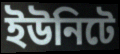
ইউনিটে